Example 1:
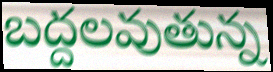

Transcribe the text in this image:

బద్దలవుతున్న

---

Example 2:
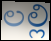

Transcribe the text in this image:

లల్లి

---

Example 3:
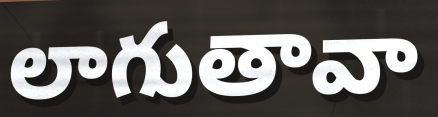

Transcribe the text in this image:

లాగుతావా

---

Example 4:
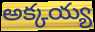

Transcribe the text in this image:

అక్కయ్య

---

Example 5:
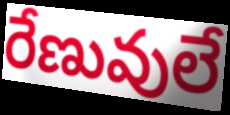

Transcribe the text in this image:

రేణువులే